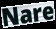
Nare